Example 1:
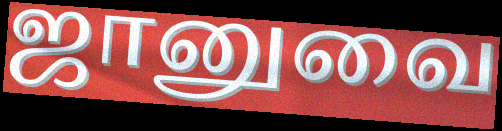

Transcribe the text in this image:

ஜானுவை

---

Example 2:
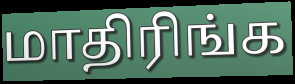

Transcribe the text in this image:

மாதிரிங்க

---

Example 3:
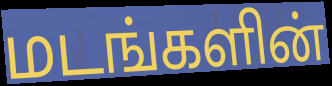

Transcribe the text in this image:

மடங்களின்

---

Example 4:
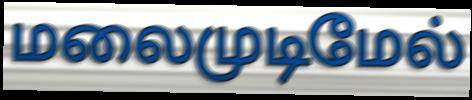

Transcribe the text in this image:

மலைமுடிமேல்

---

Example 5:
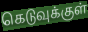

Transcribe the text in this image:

கெடுவுக்குள்